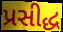
પ્રસીદ્ધ